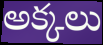
అక్కలు